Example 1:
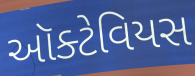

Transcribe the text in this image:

ઑક્ટેવિયસ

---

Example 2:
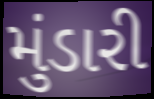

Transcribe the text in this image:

મુંડારી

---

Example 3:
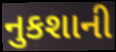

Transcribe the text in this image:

નુકશાની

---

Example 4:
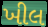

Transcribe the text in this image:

ખીલ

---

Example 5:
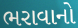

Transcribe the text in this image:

ભરાવાનો